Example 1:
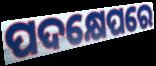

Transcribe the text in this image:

ପଦକ୍ଷେପରେ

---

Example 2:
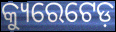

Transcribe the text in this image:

କ୍ୟୁରେଟେଡ଼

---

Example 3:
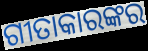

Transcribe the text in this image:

ଗୀତାକାରଙ୍କର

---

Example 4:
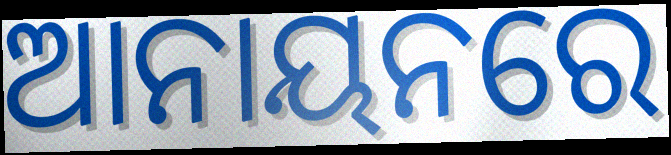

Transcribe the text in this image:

ଆନାୟନରେ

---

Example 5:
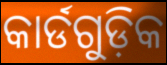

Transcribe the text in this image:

କାର୍ଡଗୁଡ଼ିକ